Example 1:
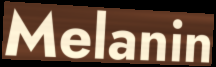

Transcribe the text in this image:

Melanin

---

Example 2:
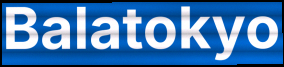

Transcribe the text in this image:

Balatokyo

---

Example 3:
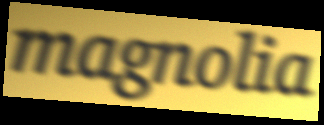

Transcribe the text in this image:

magnolia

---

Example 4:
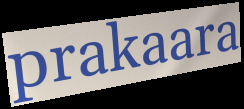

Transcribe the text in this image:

prakaara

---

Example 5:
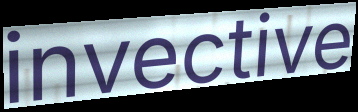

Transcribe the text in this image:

invective